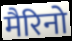
मैरिनो